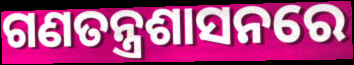
ଗଣତନ୍ତ୍ରଶାସନରେ